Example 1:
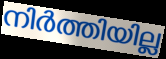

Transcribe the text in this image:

നിർത്തിയില്ല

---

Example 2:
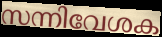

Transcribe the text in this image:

സന്നിവേശക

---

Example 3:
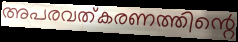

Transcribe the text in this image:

അപരവത്കരണത്തിന്റെ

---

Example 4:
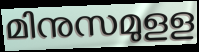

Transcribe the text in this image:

മിനുസമുളള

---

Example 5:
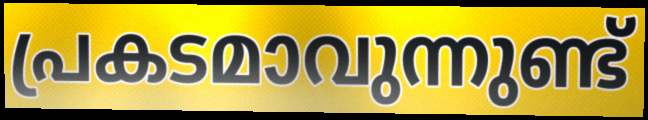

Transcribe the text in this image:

പ്രകടമാവുന്നുണ്ട്